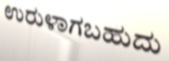
ಉರುಳಾಗಬಹುದು